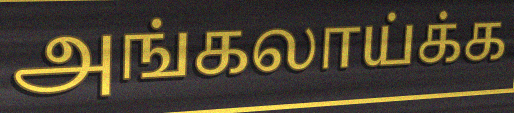
அங்கலாய்க்க